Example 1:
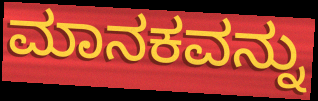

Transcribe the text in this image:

ಮಾನಕವನ್ನು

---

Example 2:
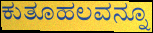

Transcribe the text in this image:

ಕುತೂಹಲವನ್ನೂ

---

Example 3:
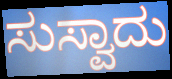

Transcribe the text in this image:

ಸುಸ್ವಾದು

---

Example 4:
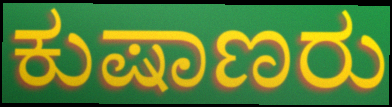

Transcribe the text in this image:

ಕುಷಾಣರು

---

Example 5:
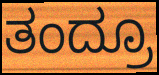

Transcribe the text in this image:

ತಂದ್ರೂ